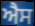
ਐੈਸ